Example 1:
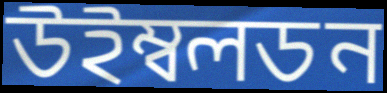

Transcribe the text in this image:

উইম্বলডন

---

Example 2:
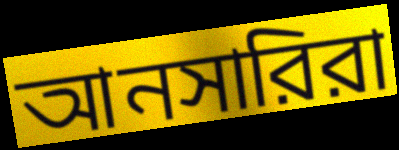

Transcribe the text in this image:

আনসারিরা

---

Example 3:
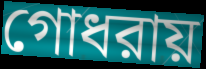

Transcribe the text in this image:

গোধরায়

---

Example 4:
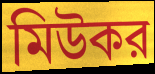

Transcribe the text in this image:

মিউকর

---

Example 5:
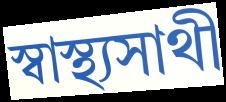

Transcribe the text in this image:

স্বাস্থ্যসাথী